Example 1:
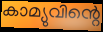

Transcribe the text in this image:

കാമ്യുവിന്റെ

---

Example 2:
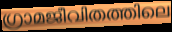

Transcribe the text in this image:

ഗ്രാമജീവിതത്തിലെ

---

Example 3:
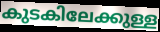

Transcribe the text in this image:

കുടകിലേക്കുള്ള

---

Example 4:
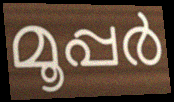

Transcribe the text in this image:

മൂപ്പർ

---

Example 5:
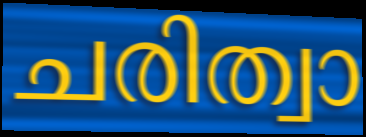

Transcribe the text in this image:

ചരിത്വാ